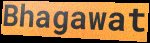
Bhagawat